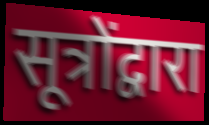
सूत्रोंद्वारा